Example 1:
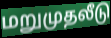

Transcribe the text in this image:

மறுமுதலீடு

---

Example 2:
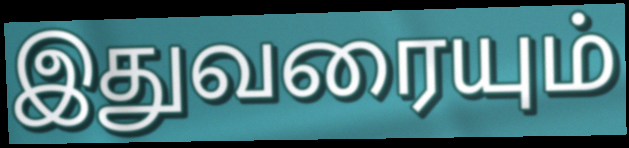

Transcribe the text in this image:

இதுவரையும்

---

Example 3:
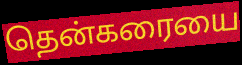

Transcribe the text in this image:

தென்கரையை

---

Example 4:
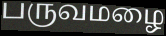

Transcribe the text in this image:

பருவமழை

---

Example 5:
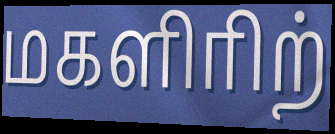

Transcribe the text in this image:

மகளிரிற்